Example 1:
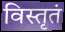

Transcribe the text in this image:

विस्तृतं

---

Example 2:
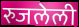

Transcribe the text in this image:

रुजलेली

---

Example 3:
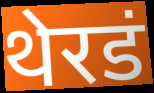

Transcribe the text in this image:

थेरडं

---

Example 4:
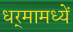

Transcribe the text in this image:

धर्मामध्यें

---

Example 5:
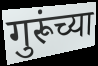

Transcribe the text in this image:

गुरूंच्या